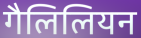
गैलिलियन